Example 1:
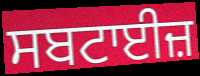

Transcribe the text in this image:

ਸਬਟਾਈਜ਼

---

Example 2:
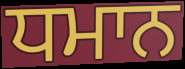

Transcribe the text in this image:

ਧਮਾਨ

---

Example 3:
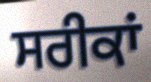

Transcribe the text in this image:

ਸਰੀਕਾਂ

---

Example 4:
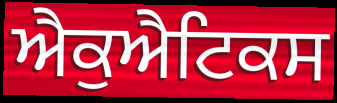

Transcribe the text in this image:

ਐਕੁਐਟਿਕਸ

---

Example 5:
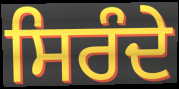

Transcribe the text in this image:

ਸਿਰੰਦੇ